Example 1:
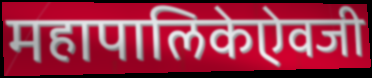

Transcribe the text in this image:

महापालिकेऐवजी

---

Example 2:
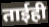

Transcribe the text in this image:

ताईही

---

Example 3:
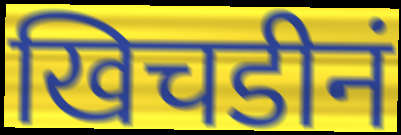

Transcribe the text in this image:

खिचडीनं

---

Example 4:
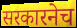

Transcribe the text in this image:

सरकारनेच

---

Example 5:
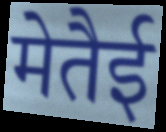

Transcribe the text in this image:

मेतैई